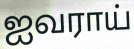
ஐவராய்